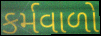
કર્મવાળો